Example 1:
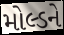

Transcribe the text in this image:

મોલ્ડને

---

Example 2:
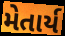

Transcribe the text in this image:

મેતાર્ય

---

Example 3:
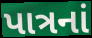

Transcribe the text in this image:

પાત્રનાં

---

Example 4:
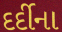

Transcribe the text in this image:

દર્દીના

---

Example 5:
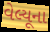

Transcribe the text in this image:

વેલ્યૂના